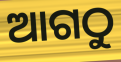
ଆଗଠୁ